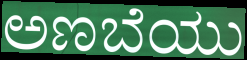
ಅಣಬೆಯು